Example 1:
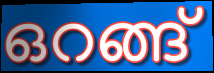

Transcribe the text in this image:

ഒറങ്ങ്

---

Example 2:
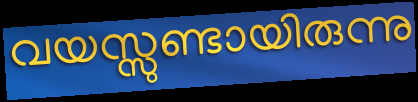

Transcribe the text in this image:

വയസ്സുണ്ടായിരുന്നു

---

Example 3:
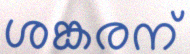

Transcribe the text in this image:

ശങ്കരന്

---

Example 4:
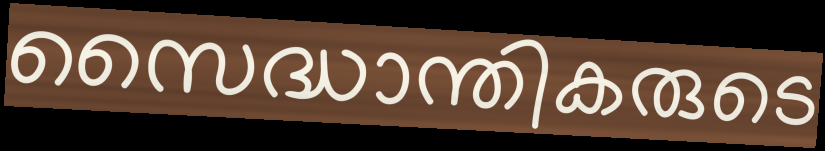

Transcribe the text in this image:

സൈദ്ധാന്തികരുടെ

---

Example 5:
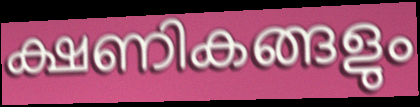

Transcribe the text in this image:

ക്ഷണികങ്ങളും